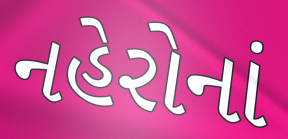
નહેરોનાં